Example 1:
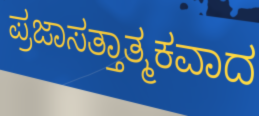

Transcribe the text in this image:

ಪ್ರಜಾಸತ್ತಾತ್ಮಕವಾದ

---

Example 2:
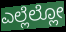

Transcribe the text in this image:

ಎಲ್ಲೆಲ್ಲೋ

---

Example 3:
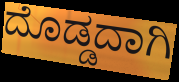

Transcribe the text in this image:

ದೊಡ್ಡದಾಗಿ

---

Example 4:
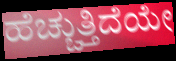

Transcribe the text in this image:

ಹೆಚ್ಚುತ್ತಿದೆಯೇ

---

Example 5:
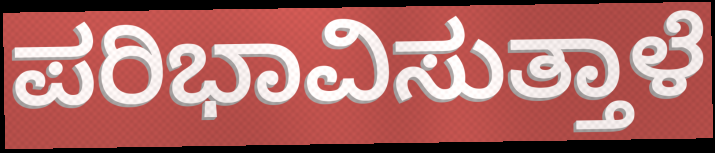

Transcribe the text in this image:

ಪರಿಭಾವಿಸುತ್ತಾಳೆ